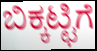
ಬಿಕ್ಕಟ್ಟಿಗೆ